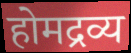
होमद्रव्य